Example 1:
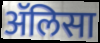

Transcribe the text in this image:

ॲलिसा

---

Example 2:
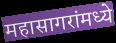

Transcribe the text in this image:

महासागरांमध्ये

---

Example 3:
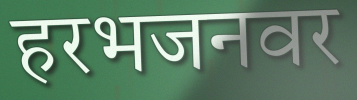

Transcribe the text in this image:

हरभजनवर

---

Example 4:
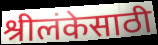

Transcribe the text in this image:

श्रीलंकेसाठी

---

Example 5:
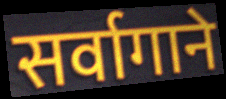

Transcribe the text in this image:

सर्वागाने